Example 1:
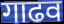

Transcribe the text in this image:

गाढव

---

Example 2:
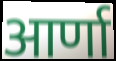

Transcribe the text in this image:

आर्णा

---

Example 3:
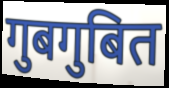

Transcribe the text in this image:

गुबगुबित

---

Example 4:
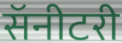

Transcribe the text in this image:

सॅनीटरी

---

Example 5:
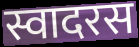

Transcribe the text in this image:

स्वादरस